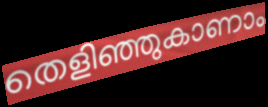
തെളിഞ്ഞുകാണാം